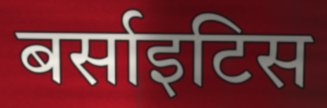
बर्साइटिस